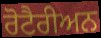
ਰੋਟੈਰੀਅਨ